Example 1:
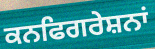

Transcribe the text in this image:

ਕਨਫਿਗਰੇਸ਼ਨਾਂ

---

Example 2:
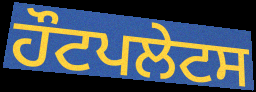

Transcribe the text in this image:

ਹੌਟਪਲੇਟਸ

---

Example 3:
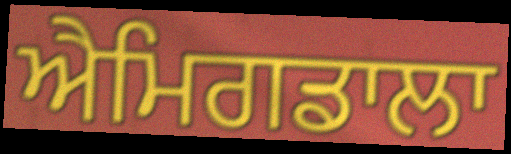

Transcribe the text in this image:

ਐਮਿਗਡਾਲਾ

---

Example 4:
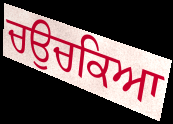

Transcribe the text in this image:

ਚਉਚਕਿਆ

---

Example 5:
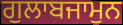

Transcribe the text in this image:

ਗੁਲਾਬਜਾਮੁਨ